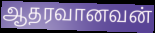
ஆதரவானவன்